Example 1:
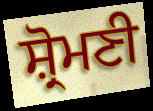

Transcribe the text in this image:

ਸ਼੍ਰੋਮਣੀ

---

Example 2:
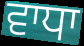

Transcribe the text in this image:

ਵਾਧਾ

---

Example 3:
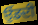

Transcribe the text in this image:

ਉੱਡਦੀ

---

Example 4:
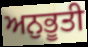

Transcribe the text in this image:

ਅਨੁਭੂਤੀ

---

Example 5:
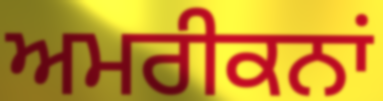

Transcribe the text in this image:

ਅਮਰੀਕਨਾਂ